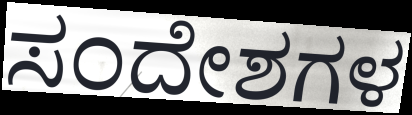
ಸಂದೇಶಗಳ